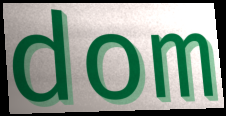
dom